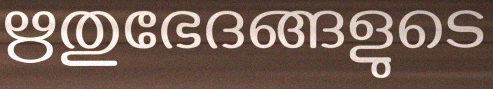
ഋതുഭേദങ്ങളുടെ